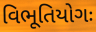
વિભૂતિયોગઃ